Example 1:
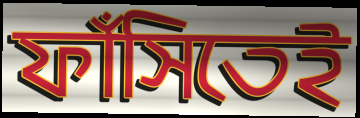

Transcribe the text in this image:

ফাঁসিতেই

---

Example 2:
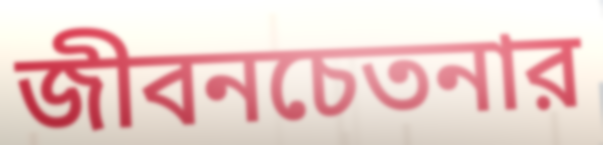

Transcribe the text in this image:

জীবনচেতনার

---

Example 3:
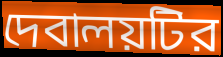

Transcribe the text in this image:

দেবালয়টির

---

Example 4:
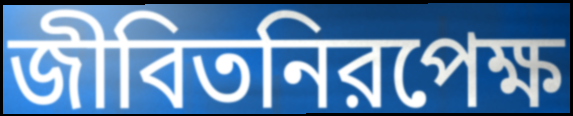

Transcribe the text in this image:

জীবিতনিরপেক্ষ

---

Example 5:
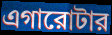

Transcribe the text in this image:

এগারোটার